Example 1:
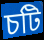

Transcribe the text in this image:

চটি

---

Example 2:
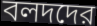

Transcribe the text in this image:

বলদদের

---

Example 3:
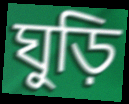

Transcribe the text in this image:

ঘুড়ি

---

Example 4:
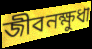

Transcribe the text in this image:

জীবনক্ষুধা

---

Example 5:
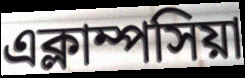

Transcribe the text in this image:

এক্লাম্পসিয়া